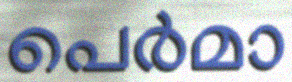
പെർമാ